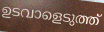
ഉടവാളെടുത്ത്